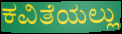
ಕವಿತೆಯಲ್ಲು